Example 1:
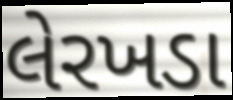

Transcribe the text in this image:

લેરખડા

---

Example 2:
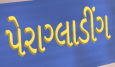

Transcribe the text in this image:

પેરાગ્લાડીંગ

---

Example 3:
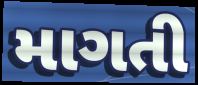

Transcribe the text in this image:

માગતી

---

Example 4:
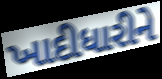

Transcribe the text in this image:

ખાદીધારીને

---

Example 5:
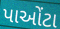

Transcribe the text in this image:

પાઓંટા